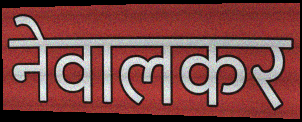
नेवालकर